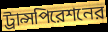
ট্রান্সপিরেশনের